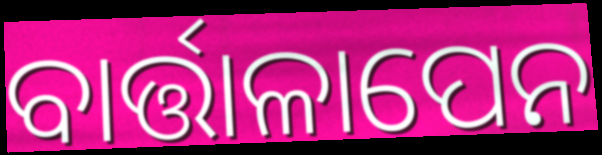
ବାର୍ତ୍ତାଳାପେନ